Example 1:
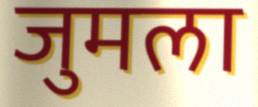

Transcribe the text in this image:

जुमला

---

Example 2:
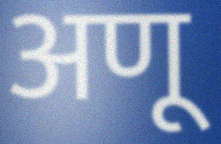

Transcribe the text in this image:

अणू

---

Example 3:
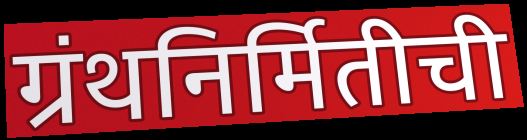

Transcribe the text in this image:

ग्रंथनिर्मितीची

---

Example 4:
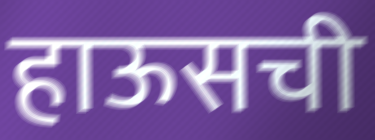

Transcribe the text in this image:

हाऊसची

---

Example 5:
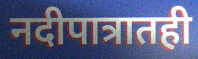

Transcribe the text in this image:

नदीपात्रातही